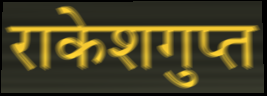
राकेशगुप्त